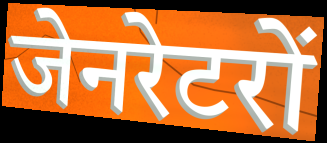
जेनरेटरों